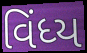
વિંધ્ય